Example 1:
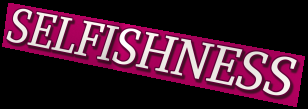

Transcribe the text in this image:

SELFISHNESS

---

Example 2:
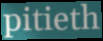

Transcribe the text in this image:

pitieth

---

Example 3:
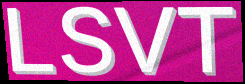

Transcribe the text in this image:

LSVT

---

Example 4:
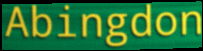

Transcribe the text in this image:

Abingdon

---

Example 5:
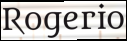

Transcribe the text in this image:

Rogerio